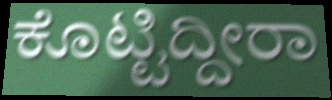
ಕೊಟ್ಟಿದ್ದೀರಾ